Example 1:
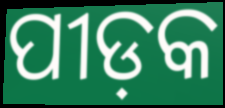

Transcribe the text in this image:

ପୀଡ଼କ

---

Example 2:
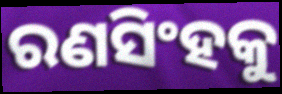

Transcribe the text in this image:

ରଣସିଂହକୁ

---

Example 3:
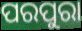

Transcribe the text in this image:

ପରପୁରା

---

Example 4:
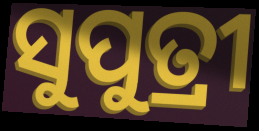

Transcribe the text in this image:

ସୁପୁତ୍ରୀ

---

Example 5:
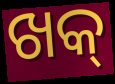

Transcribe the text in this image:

ଖକ୍